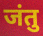
जंतु